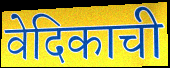
वेदिकाची